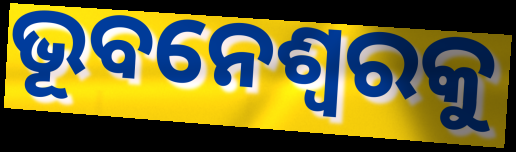
ଭୂବନେଶ୍ୱରକୁ